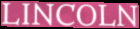
LINCOLN